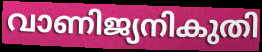
വാണിജ്യനികുതി